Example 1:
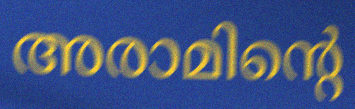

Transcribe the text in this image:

അരാമിന്റെ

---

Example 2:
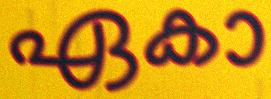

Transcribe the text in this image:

ഏകാ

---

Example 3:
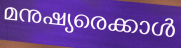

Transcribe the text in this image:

മനുഷ്യരെക്കാൾ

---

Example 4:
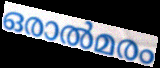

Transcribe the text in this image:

ഒരാൽമരം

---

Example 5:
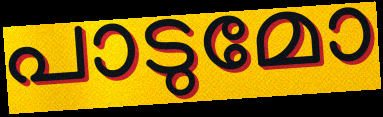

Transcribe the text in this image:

പാടുമോ